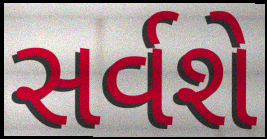
સર્વશે